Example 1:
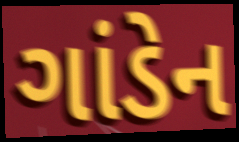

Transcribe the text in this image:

ગાંડેન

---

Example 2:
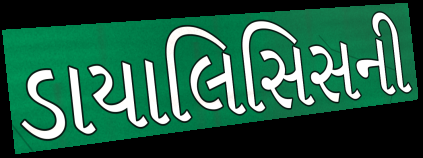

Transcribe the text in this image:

ડાયાલિસિસની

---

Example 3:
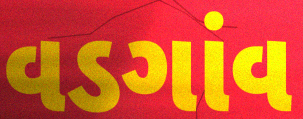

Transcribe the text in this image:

વડગાંવ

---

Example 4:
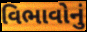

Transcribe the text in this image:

વિભાવોનું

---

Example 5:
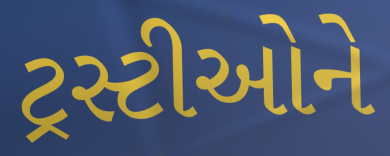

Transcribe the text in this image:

ટ્રસ્ટીઓને